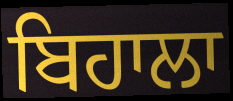
ਬਿਹਾਲਾ